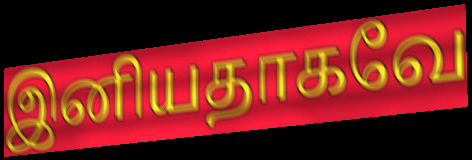
இனியதாகவே